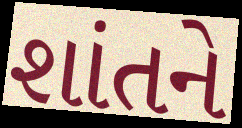
શાંતને